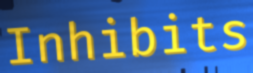
Inhibits